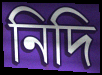
নিদি